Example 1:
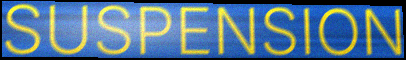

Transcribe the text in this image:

SUSPENSION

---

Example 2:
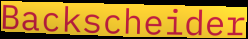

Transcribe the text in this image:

Backscheider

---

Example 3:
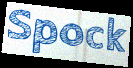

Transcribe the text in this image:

Spock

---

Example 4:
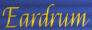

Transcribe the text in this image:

Eardrum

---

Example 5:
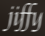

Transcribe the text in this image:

jiffy